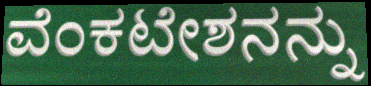
ವೆಂಕಟೇಶನನ್ನು